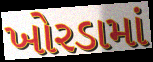
ખોરડામાં